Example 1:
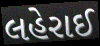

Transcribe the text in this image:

લહેરાઈ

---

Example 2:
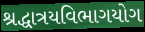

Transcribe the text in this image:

શ્રદ્ધાત્રયવિભાગયોગ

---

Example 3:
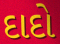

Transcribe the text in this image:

દાદો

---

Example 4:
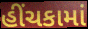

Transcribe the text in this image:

હીંચકામાં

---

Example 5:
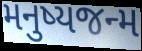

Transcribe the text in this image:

મનુષ્યજન્મ